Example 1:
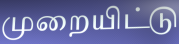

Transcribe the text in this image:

முறையிட்டு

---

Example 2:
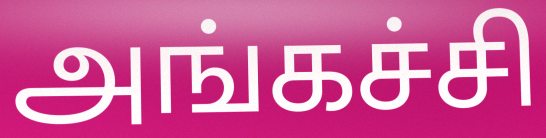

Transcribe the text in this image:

அங்கச்சி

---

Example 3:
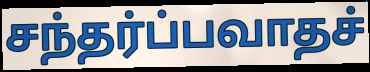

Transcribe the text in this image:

சந்தர்ப்பவாதச்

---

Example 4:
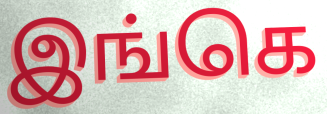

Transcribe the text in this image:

இங்கெ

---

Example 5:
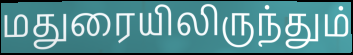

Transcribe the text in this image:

மதுரையிலிருந்தும்